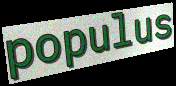
populus